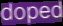
doped